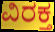
ವಿರಕ್ತ